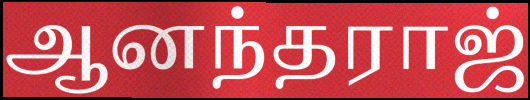
ஆனந்தராஜ்